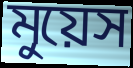
মুয়েস